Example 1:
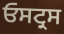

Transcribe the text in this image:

ਓਸਟ੍ਰਸ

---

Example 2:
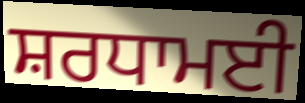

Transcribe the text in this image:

ਸ਼ਰਧਾਮਈ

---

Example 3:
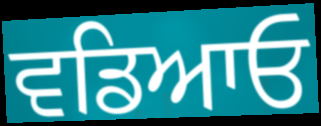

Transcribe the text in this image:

ਵਡਿਆਓ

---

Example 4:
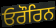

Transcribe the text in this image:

ਓਰੌਰਿਨ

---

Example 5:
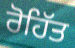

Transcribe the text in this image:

ਰੋਹਿੱਤ